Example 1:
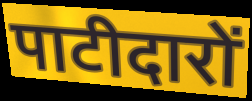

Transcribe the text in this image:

पाटीदारों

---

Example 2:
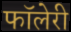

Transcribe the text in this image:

फॉलेरी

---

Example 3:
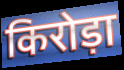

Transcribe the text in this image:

किरोड़ा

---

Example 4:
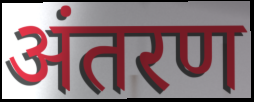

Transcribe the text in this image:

अंतरण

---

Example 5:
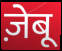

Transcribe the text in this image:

ज़ेबू